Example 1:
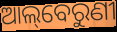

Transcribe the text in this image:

ଆଲ୍‌ବେରୁଣୀ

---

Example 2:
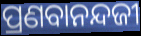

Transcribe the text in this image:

ପ୍ରଣବାନନ୍ଦଜୀ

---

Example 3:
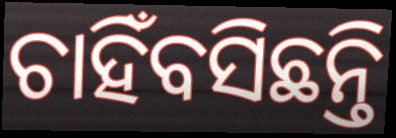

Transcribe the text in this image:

ଚାହିଁବସିଛନ୍ତି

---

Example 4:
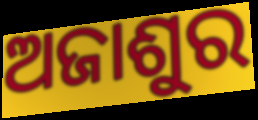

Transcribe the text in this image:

ଅଜାଶୁର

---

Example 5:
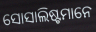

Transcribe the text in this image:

ସୋସାଲିଷ୍ଟମାନେ